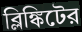
ব্লিঙ্কিটের